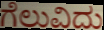
ಗೆಲುವಿದು